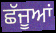
ਛੱਜੂਆਂ